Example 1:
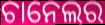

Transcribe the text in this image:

ଚାନେଲର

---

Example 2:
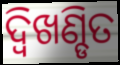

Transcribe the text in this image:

ଦ୍ଵିଖଣ୍ଡିତ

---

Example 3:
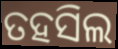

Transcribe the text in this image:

ତହସିଲ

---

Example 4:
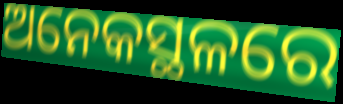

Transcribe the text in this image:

ଅନେକସ୍ଥଳରେ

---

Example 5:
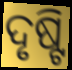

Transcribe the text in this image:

ଦୃଷ୍ଟି